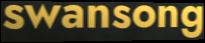
swansong